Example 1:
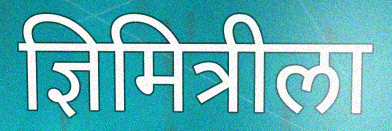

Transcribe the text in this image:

ज्ञिमित्रीला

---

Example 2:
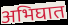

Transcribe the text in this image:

अभिघात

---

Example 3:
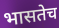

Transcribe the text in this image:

भासतेच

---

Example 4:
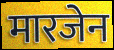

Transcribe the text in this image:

मारजेन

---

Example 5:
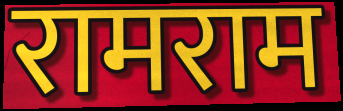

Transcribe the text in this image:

रामराम